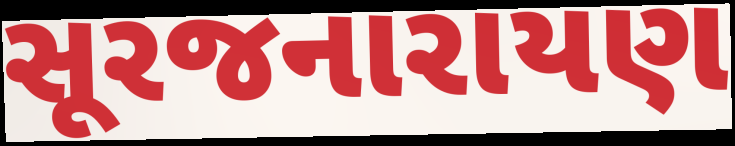
સૂરજનારાયણ